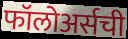
फॉलोअर्सची